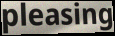
pleasing